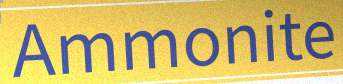
Ammonite